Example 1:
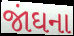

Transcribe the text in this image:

જાંઘના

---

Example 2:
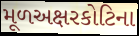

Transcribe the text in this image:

મૂળઅક્ષરકોટિના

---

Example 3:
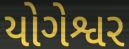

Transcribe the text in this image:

યોગેશ્વર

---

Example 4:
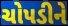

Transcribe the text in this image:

ચોપડીને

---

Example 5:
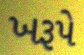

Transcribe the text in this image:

ખરૂપે